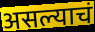
असल्याचं